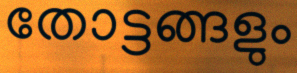
തോട്ടങ്ങളും